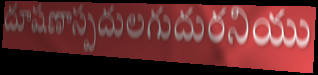
దూషణాస్పదులగుదురనియు